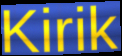
Kirik